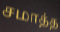
சமாத்த